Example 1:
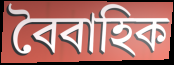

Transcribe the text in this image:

বৈবাহিক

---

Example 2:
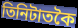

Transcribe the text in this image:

তিনিটাতকৈ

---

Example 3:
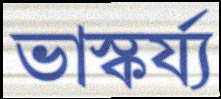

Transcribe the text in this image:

ভাস্কৰ্য্য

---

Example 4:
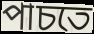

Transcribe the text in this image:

পাচতে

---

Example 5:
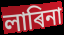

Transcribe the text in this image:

লাৰিনা